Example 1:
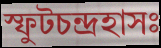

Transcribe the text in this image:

স্ফুটচন্দ্রহাসঃ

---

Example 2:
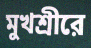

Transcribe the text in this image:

মুখশ্রীরে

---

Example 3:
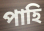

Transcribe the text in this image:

পাহি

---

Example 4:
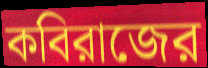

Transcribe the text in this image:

কবিরাজের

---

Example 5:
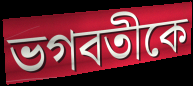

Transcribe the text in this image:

ভগবতীকে